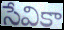
సేవికా